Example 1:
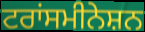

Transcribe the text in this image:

ਟਰਾਂਸਮੀਨੇਸ਼ਨ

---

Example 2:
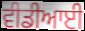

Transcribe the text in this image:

ਵੀਡੀਆਈ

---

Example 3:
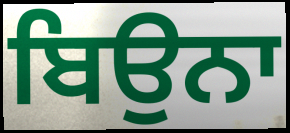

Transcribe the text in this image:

ਬਿਉਨਾ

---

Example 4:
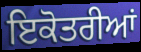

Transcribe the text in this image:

ਇਕੋਤਰੀਆਂ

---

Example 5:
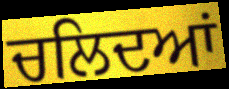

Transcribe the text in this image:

ਚਲਿਦਆਂ